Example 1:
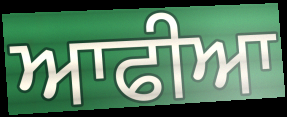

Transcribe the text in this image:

ਆਫੀਆ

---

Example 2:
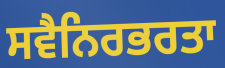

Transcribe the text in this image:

ਸਵੈਨਿਰਭਰਤਾ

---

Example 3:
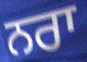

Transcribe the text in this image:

ਨਰਾ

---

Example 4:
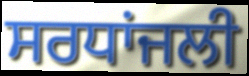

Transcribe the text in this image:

ਸਰਧਾਂਜਲੀ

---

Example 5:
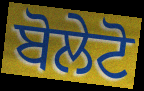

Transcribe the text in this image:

ਬੋਲੇਟੋ